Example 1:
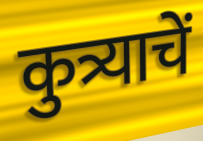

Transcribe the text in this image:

कुत्र्याचें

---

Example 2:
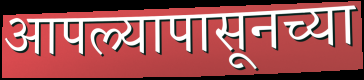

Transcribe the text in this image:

आपल्यापासूनच्या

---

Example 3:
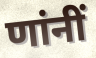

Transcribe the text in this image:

णांनीं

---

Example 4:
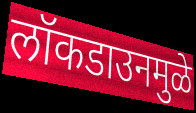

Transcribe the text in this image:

लॉकडाउनमुळे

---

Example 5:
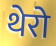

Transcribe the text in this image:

थेरो